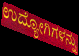
ಉದ್ಯೋಗಿಗಳನ್ನು